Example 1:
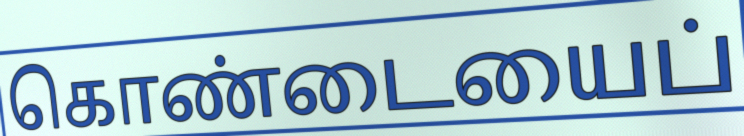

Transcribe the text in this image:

கொண்டையைப்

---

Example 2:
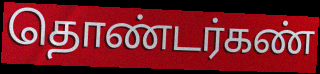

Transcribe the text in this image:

தொண்டர்கண்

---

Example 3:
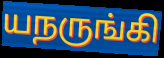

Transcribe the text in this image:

யநருங்கி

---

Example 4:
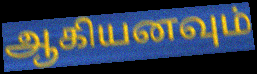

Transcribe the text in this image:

ஆகியனவும்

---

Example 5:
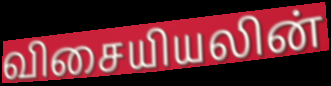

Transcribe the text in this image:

விசையியலின்